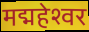
मद्महेश्वर